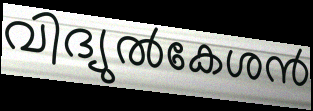
വിദ്യുൽകേശൻ